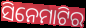
ସିନେମାଟିର